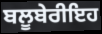
ਬਲੂਬੇਰੀਇਹ